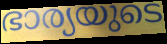
ഭാര്യയുടെ